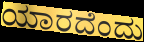
ಯಾರದೆಂದು